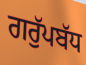
ਗਰੁੱਪਬੱਧ